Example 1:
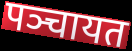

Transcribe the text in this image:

पञ्चायत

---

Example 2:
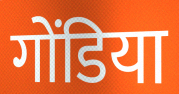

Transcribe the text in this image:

गोंडिया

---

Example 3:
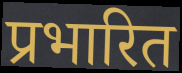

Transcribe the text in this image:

प्रभारित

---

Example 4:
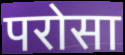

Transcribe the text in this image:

परोसा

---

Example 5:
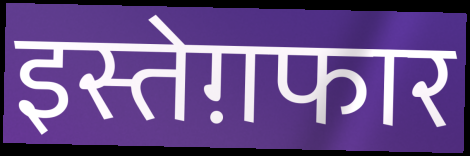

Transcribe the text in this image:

इस्तेग़फार